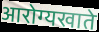
आरोग्यखाते